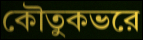
কৌতুকভরে